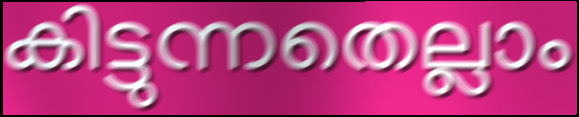
കിട്ടുന്നതെല്ലാം